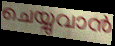
ചെയ്യുവാൻ